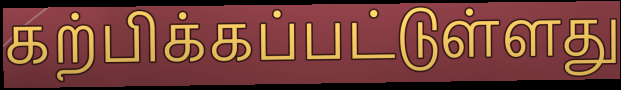
கற்பிக்கப்பட்டுள்ளது